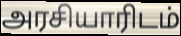
அரசியாரிடம்